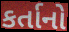
કર્તાનો